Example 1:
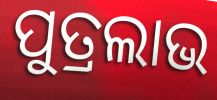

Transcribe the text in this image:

ପୁତ୍ରଲାଭ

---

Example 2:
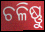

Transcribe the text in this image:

ଚଳିଷ୍ଣୁ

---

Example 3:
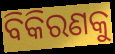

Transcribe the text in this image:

ବିକିରଣକୁ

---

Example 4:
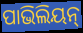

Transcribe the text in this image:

ପାଭିଲିୟନ୍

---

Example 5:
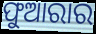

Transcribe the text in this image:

ଫୁଆରାର